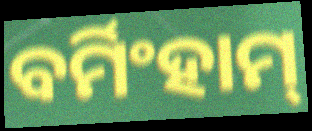
ବର୍ମିଂହାମ୍